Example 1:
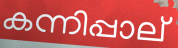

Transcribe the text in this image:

കന്നിപ്പാല്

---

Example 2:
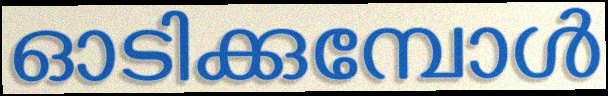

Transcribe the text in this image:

ഓടിക്കുമ്പോൾ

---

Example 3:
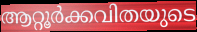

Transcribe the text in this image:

ആറ്റൂർക്കവിതയുടെ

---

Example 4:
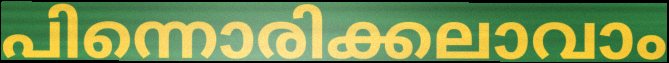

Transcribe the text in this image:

പിന്നൊരിക്കലാവാം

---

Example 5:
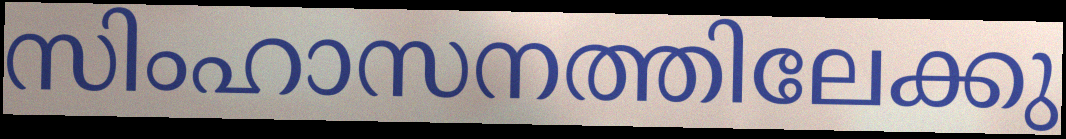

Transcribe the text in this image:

സിംഹാസനത്തിലേക്കു